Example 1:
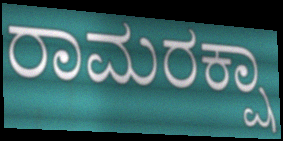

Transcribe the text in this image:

ರಾಮರಕ್ಷಾ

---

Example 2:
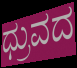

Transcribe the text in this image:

ಧ್ರುವದ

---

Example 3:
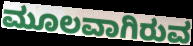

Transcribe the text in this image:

ಮೂಲವಾಗಿರುವ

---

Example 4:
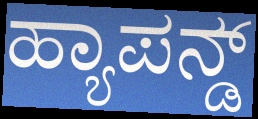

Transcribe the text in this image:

ಹ್ಯಾಪನ್ಡ್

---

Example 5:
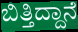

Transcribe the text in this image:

ಬಿತ್ತಿದ್ದಾನೆ